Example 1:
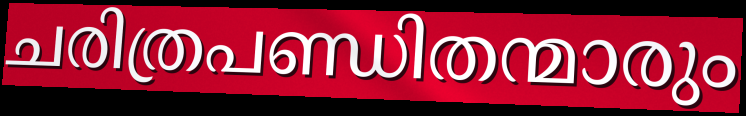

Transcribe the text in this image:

ചരിത്രപണ്ഡിതന്മാരും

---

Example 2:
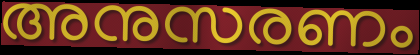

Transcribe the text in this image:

അനുസരണം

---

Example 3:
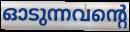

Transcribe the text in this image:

ഓടുന്നവന്റെ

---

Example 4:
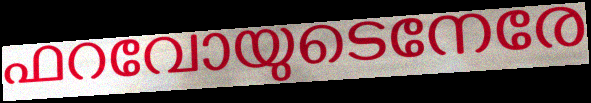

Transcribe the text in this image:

ഫറവോയുടെനേരേ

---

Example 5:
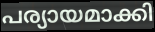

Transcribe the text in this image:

പര്യായമാക്കി